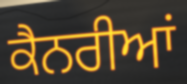
ਕੈਨਰੀਆਂ